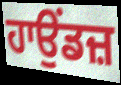
ਹਾਉਂਡਜ਼